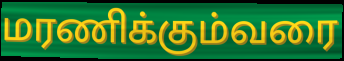
மரணிக்கும்வரை